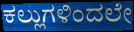
ಕಲ್ಲುಗಳಿಂದಲೇ